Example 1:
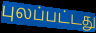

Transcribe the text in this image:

புலப்பட்டது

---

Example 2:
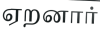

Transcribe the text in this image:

ஏறனார்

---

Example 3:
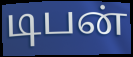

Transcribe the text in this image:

டிபன்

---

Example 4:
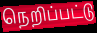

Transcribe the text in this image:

நெறிப்பட்டு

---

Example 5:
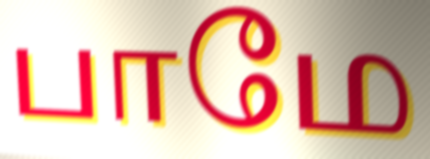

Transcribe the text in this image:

பாமே